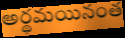
అర్థమయినంత